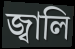
জ্বালি